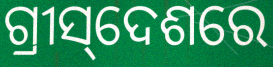
ଗ୍ରୀସ୍‌ଦେଶରେ